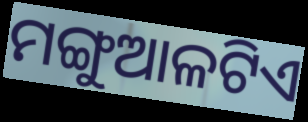
ମଙ୍ଗୁଆଳଟିଏ